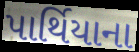
પાર્થિયાના